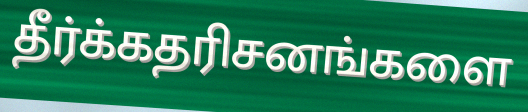
தீர்க்கதரிசனங்களை